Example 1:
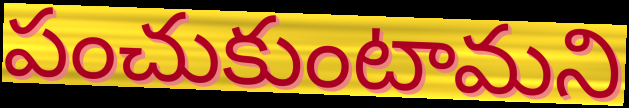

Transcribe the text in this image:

పంచుకుంటామని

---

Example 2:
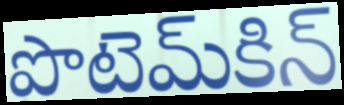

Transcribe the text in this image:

పొటెమ్‌కిన్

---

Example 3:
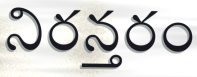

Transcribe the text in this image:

నిరన్తరం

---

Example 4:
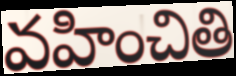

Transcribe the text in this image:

వహించితి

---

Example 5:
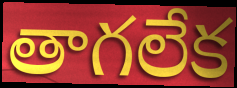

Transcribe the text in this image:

తాగలేక